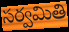
సర్వమితి